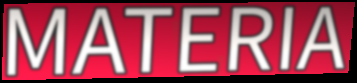
MATERIA